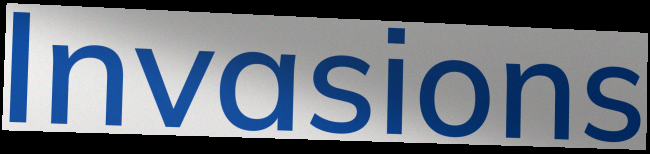
Invasions